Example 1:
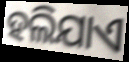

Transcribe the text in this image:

ହଲିଯାଏ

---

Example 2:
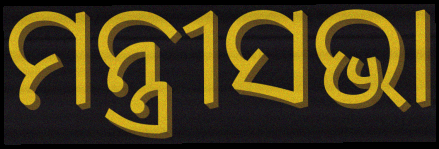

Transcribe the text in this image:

ମନ୍ତ୍ରୀସଭା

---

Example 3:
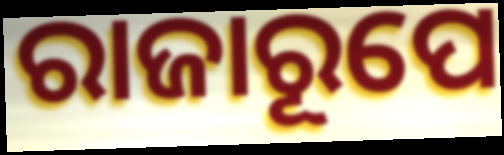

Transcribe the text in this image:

ରାଜାରୂପେ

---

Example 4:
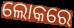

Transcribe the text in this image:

ଲୋକରେ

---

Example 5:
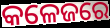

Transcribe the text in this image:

କଳେଜରେ